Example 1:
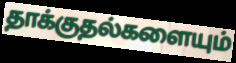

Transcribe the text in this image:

தாக்குதல்களையும்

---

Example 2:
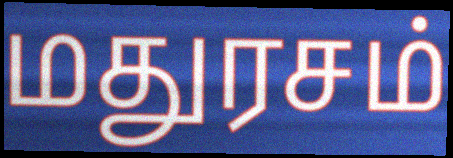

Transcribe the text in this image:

மதுரசம்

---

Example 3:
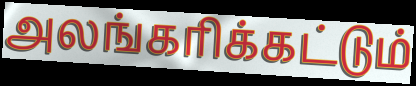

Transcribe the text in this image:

அலங்கரிக்கட்டும்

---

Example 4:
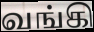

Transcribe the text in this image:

வங்கி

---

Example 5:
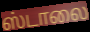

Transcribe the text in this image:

ஸ்டாலை